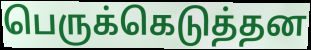
பெருக்கெடுத்தன